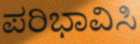
ಪರಿಭಾವಿಸಿ